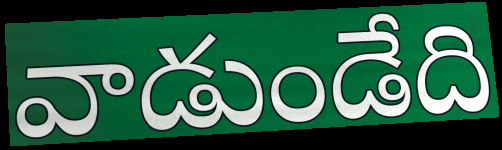
వాడుండేది